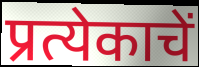
प्रत्येकाचें